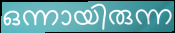
ഒന്നായിരുന്ന